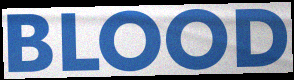
BLOOD